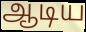
ஆடிய